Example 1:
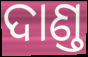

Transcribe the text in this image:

ଦାଣ୍ଡ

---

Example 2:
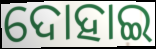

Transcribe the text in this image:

ଦୋହାଇ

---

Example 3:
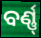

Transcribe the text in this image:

ବର୍ଣ୍ଣ୍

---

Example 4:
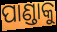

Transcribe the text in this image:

ପାଣ୍ଡାକୁ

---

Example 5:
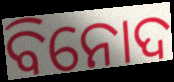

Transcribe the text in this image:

ବିନୋଦ